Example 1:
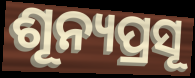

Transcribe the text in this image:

ଶୂନ୍ୟପ୍ରସୂ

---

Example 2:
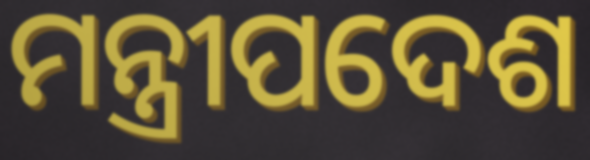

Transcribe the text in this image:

ମନ୍ତ୍ରୀପଦେଶ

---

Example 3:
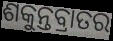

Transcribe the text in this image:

ଶକୁନ୍ତବ୍ରାତର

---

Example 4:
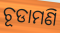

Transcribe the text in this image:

ଚୂଡାମଣି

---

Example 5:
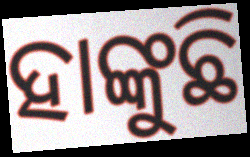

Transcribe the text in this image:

ହାଙ୍କୁଛି